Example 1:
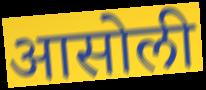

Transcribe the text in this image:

आसोली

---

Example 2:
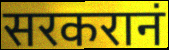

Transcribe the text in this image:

सरकरानं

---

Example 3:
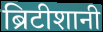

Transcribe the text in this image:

ब्रिटीशानी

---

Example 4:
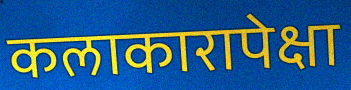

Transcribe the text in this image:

कलाकारापेक्षा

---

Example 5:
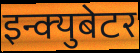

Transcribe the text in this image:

इन्क्‍युबेटर